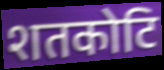
शतकोटि